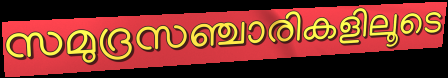
സമുദ്രസഞ്ചാരികളിലൂടെ